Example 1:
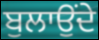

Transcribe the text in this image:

ਬੁਲਾਉਂਦੇ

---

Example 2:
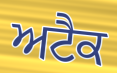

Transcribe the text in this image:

ਅਟੈਕ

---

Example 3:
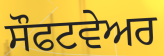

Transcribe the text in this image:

ਸੌਫਟਵੇਅਰ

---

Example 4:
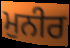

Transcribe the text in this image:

ਮੁਨੀਰ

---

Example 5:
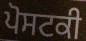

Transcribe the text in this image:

ਪੋਸਟਕੀ